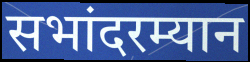
सभांदरम्यान